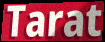
Tarat